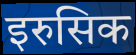
इरुसिक